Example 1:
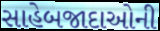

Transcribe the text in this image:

સાહેબજાદાઓની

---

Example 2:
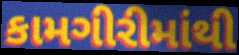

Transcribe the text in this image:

કામગીરીમાંથી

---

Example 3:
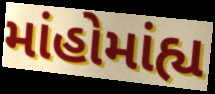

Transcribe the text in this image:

માંહોમાંહ્ય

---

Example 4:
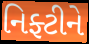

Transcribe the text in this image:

નિફ્ટીને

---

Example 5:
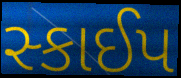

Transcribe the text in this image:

સ્કાઈપ